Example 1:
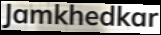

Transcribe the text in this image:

Jamkhedkar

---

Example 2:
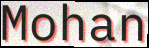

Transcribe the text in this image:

Mohan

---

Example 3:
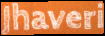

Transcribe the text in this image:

Jhaveri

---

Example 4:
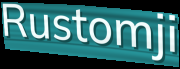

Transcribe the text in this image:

Rustomji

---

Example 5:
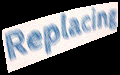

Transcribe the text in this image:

Replacing